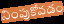
నింపుకోవడం